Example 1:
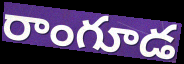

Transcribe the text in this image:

రాంగూడ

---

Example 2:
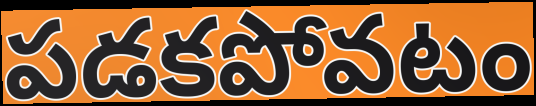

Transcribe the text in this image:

పడకపోవటం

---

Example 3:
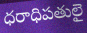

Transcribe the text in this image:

ధరాధిపతులై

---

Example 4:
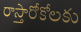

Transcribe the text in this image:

రాస్తారోకోలకు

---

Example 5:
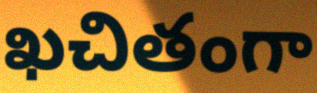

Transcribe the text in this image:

ఖచితంగా